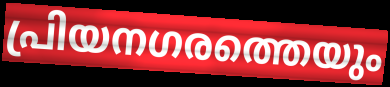
പ്രിയനഗരത്തെയും